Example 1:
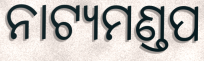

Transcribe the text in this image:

ନାଟ୍ୟମଣ୍ଡପ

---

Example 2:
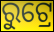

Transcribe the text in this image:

ରୁଟ୍ରେ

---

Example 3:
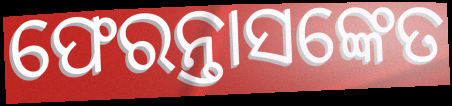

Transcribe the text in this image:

ଫେରନ୍ତାସଙ୍କେତ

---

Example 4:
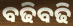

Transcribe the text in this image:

ବଢିବଢି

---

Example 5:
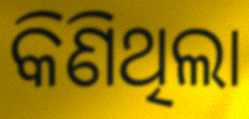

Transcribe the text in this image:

କିଣିଥିଲା